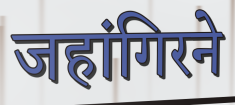
जहांगिरने